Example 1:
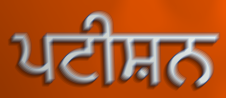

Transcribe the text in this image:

ਪਟੀਸ਼ਨ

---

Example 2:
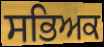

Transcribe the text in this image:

ਸਭਿਅਕ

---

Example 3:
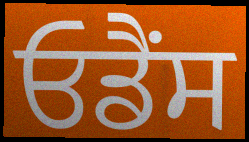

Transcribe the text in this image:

ਓਡੈਂਸ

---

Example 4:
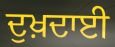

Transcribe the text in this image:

ਦੁਖ਼ਦਾਈ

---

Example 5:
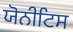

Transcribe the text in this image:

ਯੋਨੀਟਿਸ